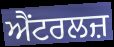
ਐਂਟਰਲਜ਼